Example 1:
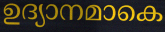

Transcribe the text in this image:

ഉദ്യാനമാകെ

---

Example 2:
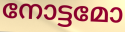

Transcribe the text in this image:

നോട്ടമോ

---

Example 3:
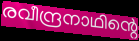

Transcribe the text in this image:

രവീന്ദ്രനാഥിന്റെ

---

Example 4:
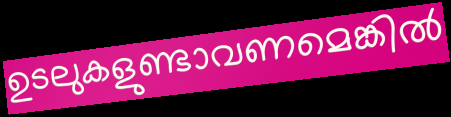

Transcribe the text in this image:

ഉടലുകളുണ്ടാവണമെങ്കിൽ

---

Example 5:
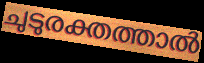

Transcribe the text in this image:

ചുടുരക്തത്താൽ